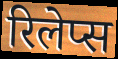
रिलेप्स